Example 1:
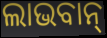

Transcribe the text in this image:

ଲାଭବାନ୍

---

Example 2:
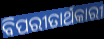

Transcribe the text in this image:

ବିପରୀତାର୍ଥକାରୀ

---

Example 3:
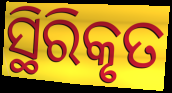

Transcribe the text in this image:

ସ୍ଥିରିକୃତ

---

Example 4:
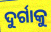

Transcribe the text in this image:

ଦୁର୍ଗାକୁ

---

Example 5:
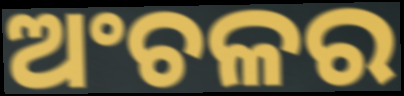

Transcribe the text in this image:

ଅଂଚଳର